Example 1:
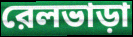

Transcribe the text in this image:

রেলভাড়া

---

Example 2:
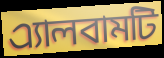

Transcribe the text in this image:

এ্যালবামটি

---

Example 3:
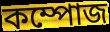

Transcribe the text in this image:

কম্পোজ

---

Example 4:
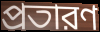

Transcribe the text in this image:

প্রতারণ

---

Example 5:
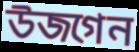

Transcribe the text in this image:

উজগেন